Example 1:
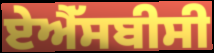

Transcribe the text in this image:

ਏਐੱਸਬੀਸੀ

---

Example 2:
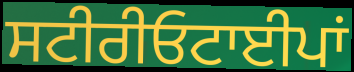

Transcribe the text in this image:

ਸਟੀਰੀਓਟਾਈਪਾਂ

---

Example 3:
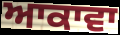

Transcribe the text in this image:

ਆਕਾਵਾ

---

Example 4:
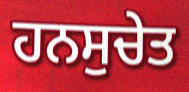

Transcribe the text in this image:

ਹਨਸੁਚੇਤ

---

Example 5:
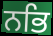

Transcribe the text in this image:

ਨਭਿ